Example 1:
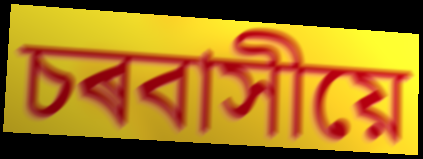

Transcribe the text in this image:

চৰবাসীয়ে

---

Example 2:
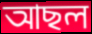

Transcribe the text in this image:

আছল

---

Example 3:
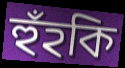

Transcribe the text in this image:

হুঁহকি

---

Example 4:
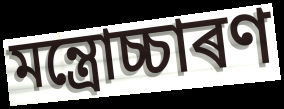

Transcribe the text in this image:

মন্ত্ৰোচ্চাৰণ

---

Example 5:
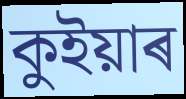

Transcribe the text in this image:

কুইয়াৰ